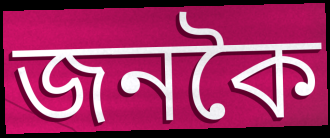
জনকৈ